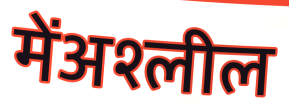
मेंअश्लील